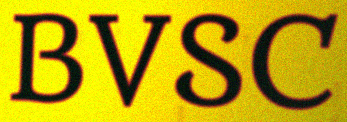
BVSC